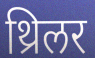
थ्रिलर